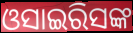
ଓସାଇରିସଙ୍କ